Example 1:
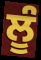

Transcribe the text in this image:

ਲੂੰ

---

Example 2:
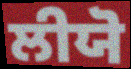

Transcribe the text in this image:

ਲੀਯੋ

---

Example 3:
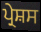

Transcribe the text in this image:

ਪ੍ਰੇਸ਼ਸ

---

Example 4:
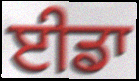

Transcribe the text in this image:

ਈਡਾ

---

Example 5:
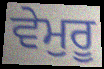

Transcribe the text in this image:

ਵੇਮੁਰੂ